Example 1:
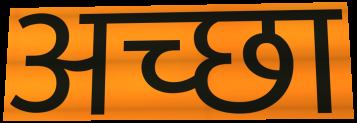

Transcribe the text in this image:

अच्छा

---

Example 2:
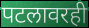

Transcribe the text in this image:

पटलावरही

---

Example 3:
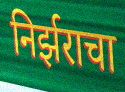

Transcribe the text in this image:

निर्झराचा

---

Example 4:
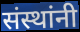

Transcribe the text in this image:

संस्थांनी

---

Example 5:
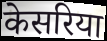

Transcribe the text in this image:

केसरिया